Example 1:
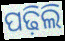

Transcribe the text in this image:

ପଢ଼ିଲି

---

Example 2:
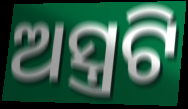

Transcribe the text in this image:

ଅସ୍ତ୍ରଟି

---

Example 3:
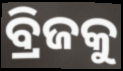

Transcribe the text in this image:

ବ୍ରିଜକୁ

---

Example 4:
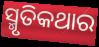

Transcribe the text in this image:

ସ୍ମୃତିକଥାର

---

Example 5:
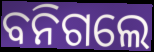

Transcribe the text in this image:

ବନିଗଲେ